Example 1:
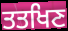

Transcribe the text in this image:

ਤਤਖਿਣ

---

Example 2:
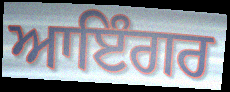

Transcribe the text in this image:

ਆਇੰਗਰ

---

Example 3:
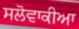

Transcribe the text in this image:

ਸਲੋਵਾਕੀਆ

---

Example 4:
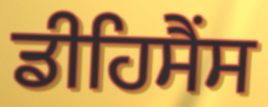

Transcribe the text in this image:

ਡੀਹਿਸੈਂਸ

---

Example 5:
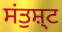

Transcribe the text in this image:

ਸਂਤੁਸ਼੍ਟ